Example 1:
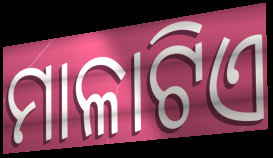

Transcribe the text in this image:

ମାଳାଟିଏ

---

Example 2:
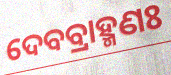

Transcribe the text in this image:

ଦେବବ୍ରାହ୍ମଣଃ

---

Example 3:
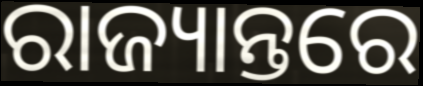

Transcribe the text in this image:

ରାଜ୍ୟାନ୍ତରେ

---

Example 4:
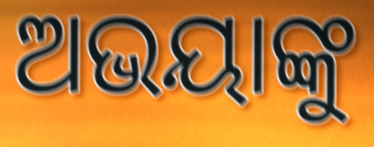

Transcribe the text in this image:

ଅଭୟାଙ୍କୁ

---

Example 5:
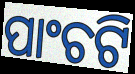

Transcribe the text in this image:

ପାଂଚଟି